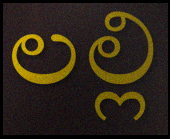
లల్లి